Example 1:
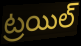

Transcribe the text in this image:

ట్రయిల్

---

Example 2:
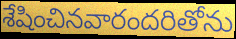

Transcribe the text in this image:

శేషించినవారందరితోను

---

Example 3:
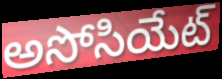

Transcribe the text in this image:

అసోసియేట్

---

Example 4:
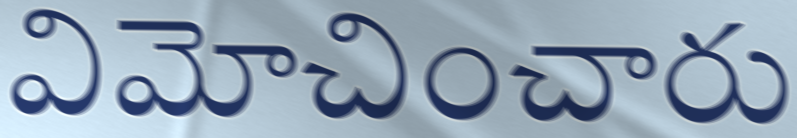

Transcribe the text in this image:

విమోచించారు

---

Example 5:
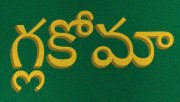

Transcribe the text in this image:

గ్లకోమా